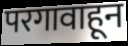
परगावाहून